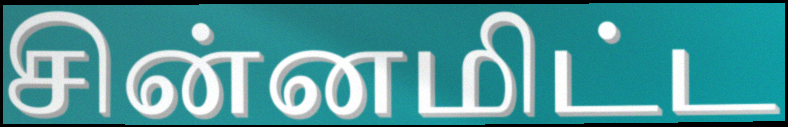
சின்னமிட்ட